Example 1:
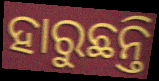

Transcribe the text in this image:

ହାରୁଛନ୍ତି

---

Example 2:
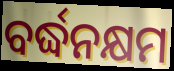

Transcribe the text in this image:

ବର୍ଦ୍ଧନକ୍ଷମ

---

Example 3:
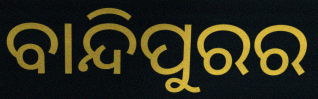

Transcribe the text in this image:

ବାନ୍ଦିପୁରର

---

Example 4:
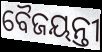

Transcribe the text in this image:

ବୈଜୟନ୍ତୀ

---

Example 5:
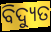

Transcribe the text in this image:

ବିଦ୍ଯୁତ